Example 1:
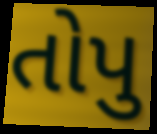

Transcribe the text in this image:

તોપુ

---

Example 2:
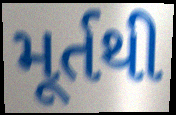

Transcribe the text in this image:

મૂર્તથી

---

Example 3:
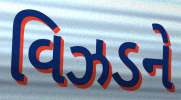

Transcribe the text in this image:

વિઝડને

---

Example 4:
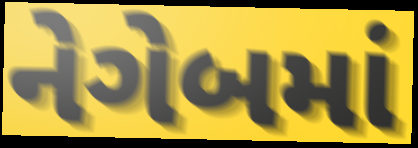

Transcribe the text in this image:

નેગેબમાં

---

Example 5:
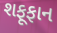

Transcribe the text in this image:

શફૂફાન